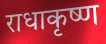
राधाकृष्ण